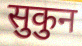
सुकुन